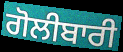
ਗੋਲੀਬਾਰੀ